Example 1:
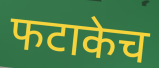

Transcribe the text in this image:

फटाकेच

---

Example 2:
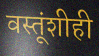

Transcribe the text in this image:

वस्तूंशीही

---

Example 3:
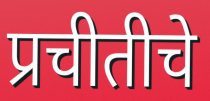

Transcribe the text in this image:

प्रचीतीचे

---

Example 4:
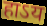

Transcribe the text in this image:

हाऽय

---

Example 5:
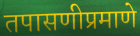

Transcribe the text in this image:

तपासणीप्रमाणे